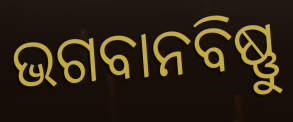
ଭଗବାନବିଷ୍ଣୁ